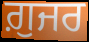
ਗ਼ੁਜਰ